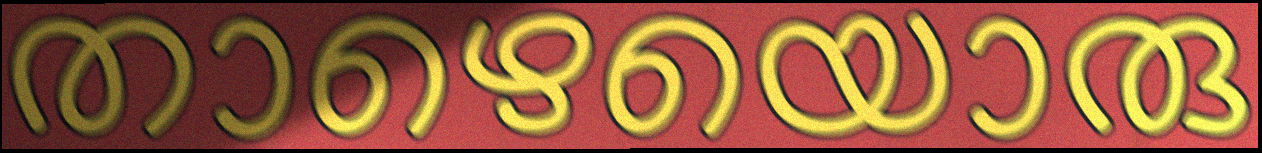
താഴെയൊരു